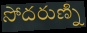
సోదరుణ్ని